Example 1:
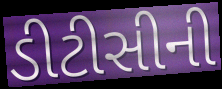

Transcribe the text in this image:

ડીટીસીની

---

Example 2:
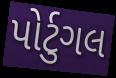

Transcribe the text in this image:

પોર્ટુગલ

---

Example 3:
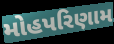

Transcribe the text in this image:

મોહપરિણામ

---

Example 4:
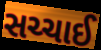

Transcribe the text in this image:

સચ્ચાઈ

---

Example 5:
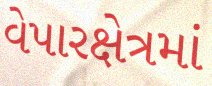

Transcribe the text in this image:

વેપારક્ષેત્રમાં